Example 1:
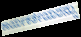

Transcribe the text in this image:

ಕಾರ್ಯಕರ್ತೆಯರನ್ನು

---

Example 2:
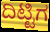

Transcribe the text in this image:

ದಿಟ್ಟಿಗ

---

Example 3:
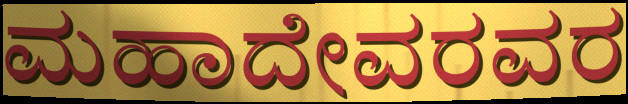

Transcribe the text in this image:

ಮಹಾದೇವರವರ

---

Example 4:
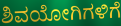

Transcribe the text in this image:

ಶಿವಯೋಗಿಗಳಿಗೆ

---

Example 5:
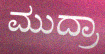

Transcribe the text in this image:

ಮುದ್ರಾ